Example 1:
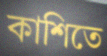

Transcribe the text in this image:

কাশিতে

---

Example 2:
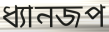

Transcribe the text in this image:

ধ্যানজপ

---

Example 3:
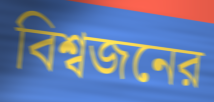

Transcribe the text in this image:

বিশ্বজনের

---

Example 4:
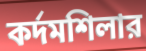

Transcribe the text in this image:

কর্দমশিলার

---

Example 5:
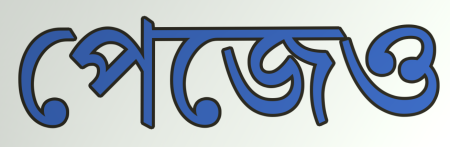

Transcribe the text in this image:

পেজেও